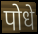
पोधे